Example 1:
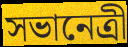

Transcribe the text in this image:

সভানেত্রী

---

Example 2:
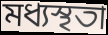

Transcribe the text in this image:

মধ্যস্থতা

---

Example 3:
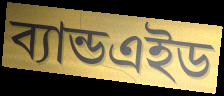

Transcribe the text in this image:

ব্যান্ডএইড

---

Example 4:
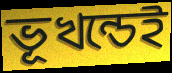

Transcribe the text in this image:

ভূখন্ডেই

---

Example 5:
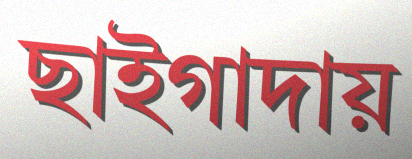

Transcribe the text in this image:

ছাইগাদায়